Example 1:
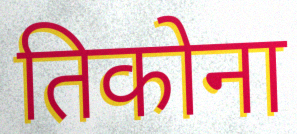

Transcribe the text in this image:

तिकोना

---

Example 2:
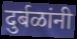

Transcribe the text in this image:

दुर्बळांनी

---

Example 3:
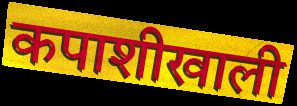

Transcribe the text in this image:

कपाशीखाली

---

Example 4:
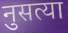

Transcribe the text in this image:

नुसत्या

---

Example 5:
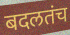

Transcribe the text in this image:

बदलतंच